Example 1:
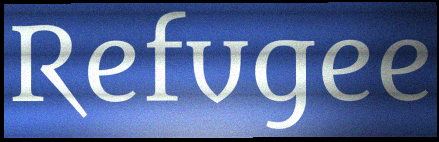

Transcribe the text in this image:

Refugee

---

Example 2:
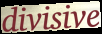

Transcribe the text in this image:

divisive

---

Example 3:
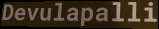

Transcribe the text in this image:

Devulapalli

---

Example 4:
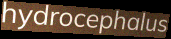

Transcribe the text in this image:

hydrocephalus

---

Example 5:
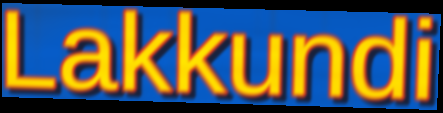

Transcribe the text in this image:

Lakkundi